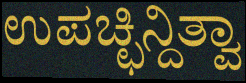
ಉಪಚ್ಛಿನ್ದಿತ್ವಾ